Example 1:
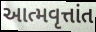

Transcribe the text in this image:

આત્મવૃત્તાંત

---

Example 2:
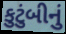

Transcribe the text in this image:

કુટુંબીનું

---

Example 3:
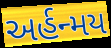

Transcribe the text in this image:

અર્હન્મય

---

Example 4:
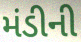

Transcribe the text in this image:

મંડીની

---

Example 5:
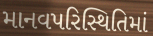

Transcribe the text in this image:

માનવપરિસ્થિતિમાં